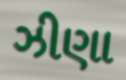
ઝીણા